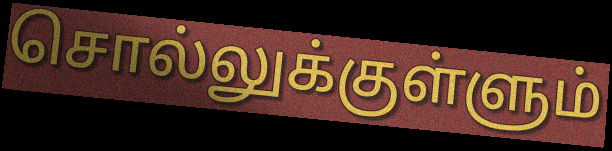
சொல்லுக்குள்ளும்